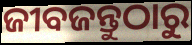
ଜୀବଜନ୍ତୁଠାରୁ